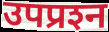
उपप्रश्‍न